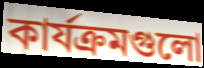
কার্যক্রমগুলো